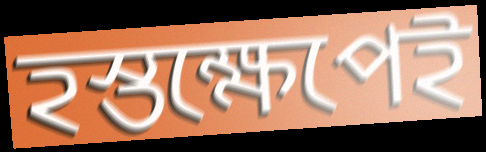
হস্তক্ষেপেই